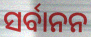
ସର୍ବାନନ